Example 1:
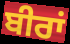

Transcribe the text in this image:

ਬੀਰਾਂ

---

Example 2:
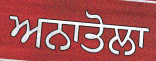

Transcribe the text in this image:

ਅਨਾਤੋਲਾ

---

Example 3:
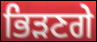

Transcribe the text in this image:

ਭਿੜਣਗੇ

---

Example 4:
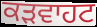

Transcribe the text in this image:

ਕੜਵਾਹਟ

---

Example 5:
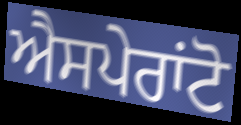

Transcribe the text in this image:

ਐਸਪੇਰਾਂਟੋ